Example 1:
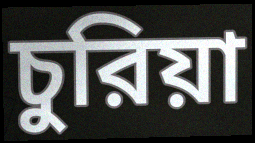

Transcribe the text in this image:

চুরিয়া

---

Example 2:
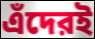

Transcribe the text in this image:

এঁদেরই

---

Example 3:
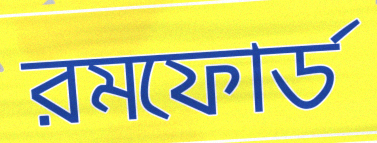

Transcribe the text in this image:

রমফোর্ড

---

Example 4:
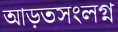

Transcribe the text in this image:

আড়তসংলগ্ন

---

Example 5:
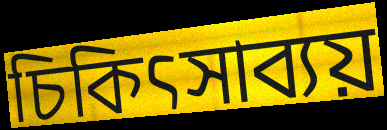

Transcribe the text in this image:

চিকিৎসাব্যয়